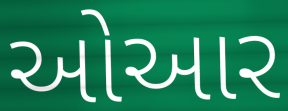
ઓઆર